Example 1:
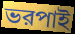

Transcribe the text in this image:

ভরপাই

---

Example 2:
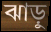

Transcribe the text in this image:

ঝাড়ু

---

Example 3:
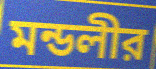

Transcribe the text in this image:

মন্ডলীর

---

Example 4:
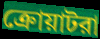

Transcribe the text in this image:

ক্রোয়াটরা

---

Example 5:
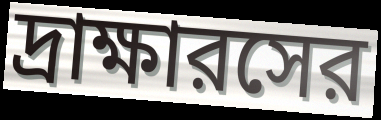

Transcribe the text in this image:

দ্রাক্ষারসের